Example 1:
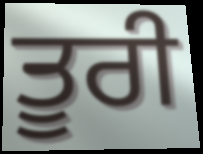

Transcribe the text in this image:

ਤੂਰੀ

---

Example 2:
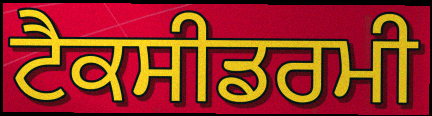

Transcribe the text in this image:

ਟੈਕਸੀਡਰਮੀ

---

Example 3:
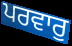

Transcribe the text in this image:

ਪਰਵਾਰੁ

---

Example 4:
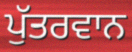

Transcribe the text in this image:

ਪੁੱਤਰਵਾਨ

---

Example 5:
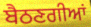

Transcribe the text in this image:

ਬੈਠਣਗੀਆਂ